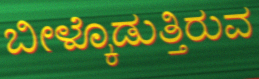
ಬೀಳ್ಕೊಡುತ್ತಿರುವ